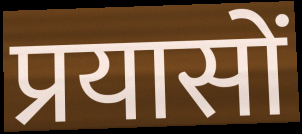
प्रयासों